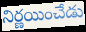
నిర్ణయించేడు